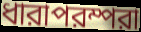
ধারাপরম্পরা